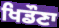
ਖਿਡੌਣਾ